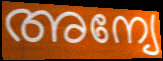
അന്യേ